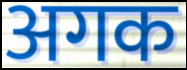
अगक